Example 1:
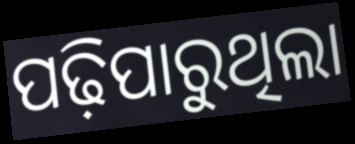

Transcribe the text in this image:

ପଢ଼ିପାରୁଥିଲା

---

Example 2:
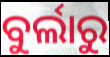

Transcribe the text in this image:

ବୁର୍ଲାରୁ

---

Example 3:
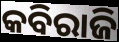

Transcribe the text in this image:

କବିରାଜି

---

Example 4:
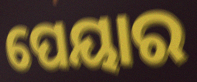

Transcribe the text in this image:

ପେୟାର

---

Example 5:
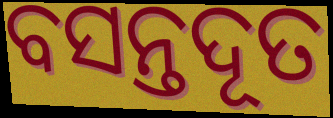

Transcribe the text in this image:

ବସନ୍ତଦୂତ